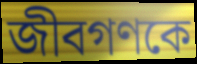
জীবগণকে